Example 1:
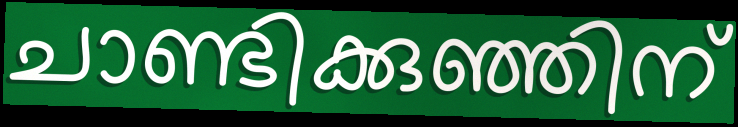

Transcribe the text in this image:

ചാണ്ടിക്കുഞ്ഞിന്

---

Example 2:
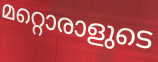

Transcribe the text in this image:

മറ്റൊരാളുടെ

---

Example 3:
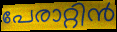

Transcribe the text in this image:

പേരാറ്റിൻ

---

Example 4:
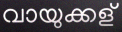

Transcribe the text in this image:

വായുക്കള്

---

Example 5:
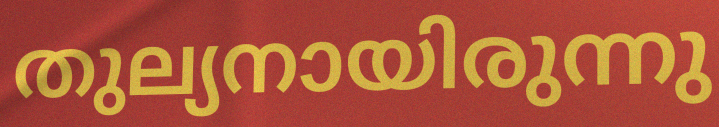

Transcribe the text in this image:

തുല്യനായിരുന്നു